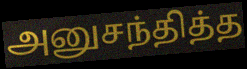
அனுசந்தித்த